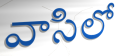
వాసిలో